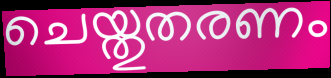
ചെയ്തുതരണം